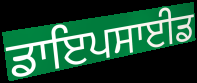
ਡਾਇਪਸਾਈਡ